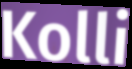
Kolli